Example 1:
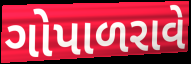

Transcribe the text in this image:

ગોપાળરાવે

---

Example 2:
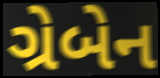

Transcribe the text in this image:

ગ્રેબેન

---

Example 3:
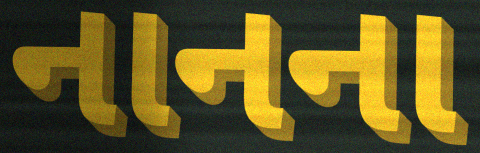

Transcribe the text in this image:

નાનના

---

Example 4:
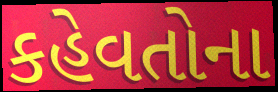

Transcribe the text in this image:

કહેવતોના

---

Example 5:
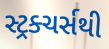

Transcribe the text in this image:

સ્ટ્રક્ચર્સથી